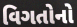
વિગતોનો